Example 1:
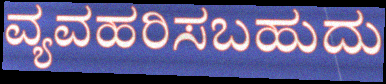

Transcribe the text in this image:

ವ್ಯವಹರಿಸಬಹುದು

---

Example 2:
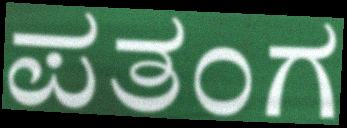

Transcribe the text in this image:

ಪತಂಗ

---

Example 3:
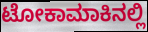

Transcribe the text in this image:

ಟೋಕಾಮಾಕಿನಲ್ಲಿ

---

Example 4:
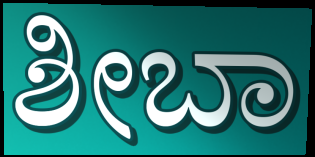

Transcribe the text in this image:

ಶೀಬಾ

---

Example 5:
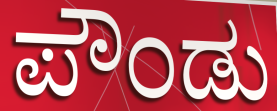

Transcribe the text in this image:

ಪೌಂಡು